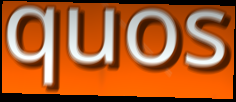
quos